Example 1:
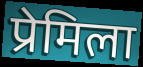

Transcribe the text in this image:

प्रेमिला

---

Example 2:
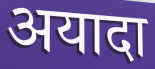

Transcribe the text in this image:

अयादा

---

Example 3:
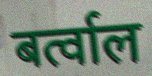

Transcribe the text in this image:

बर्त्वाल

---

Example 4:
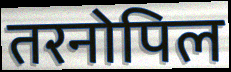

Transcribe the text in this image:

तरनोपिल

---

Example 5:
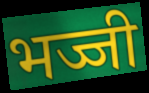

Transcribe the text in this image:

भज्जी